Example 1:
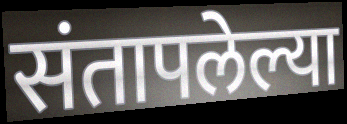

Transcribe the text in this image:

संतापलेल्या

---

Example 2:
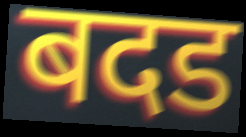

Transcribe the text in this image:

बदड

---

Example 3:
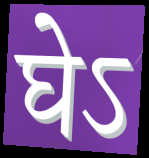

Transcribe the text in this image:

घेऽ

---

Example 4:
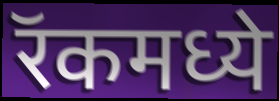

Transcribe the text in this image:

रॅकमध्ये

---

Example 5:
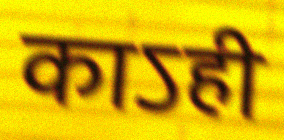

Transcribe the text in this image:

काऽही